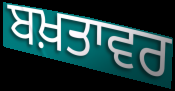
ਬਖ਼ਤਾਵਰ